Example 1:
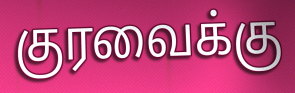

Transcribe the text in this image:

குரவைக்கு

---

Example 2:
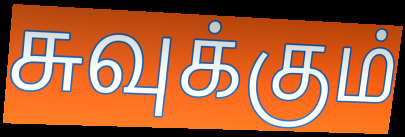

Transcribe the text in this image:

சுவுக்கும்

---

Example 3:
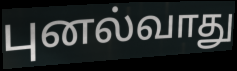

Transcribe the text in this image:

புனல்வாது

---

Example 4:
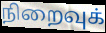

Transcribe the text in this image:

நிறைவுக்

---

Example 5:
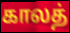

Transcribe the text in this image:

காலத்